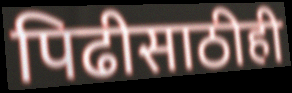
पिढीसाठीही